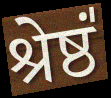
श्रेष्ठं॑